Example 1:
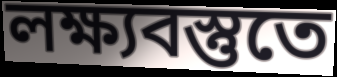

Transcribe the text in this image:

লক্ষ্যবস্তুতে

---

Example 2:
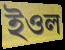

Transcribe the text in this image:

ইওল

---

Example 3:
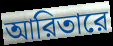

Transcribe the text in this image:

আরিতারে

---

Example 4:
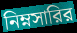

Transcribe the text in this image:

নিম্নসারির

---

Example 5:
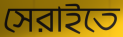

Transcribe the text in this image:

সেরাইতে